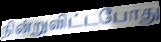
நின்றுவிட்டபோது